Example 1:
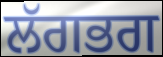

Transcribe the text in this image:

ਲੱਗਭਗ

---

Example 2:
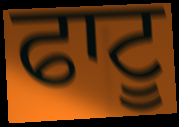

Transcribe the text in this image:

ਫਾਟੂ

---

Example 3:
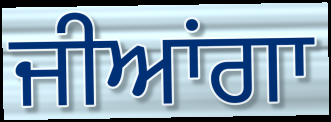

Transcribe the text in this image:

ਜੀਆਂਗਾ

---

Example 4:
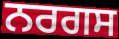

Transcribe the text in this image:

ਨਰਗਸ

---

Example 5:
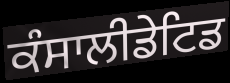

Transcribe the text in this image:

ਕੰਸਾਲੀਡੇਟਿਡ